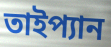
তাইপ্যান